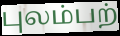
புலம்பற்